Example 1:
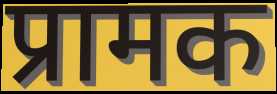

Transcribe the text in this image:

प्रामक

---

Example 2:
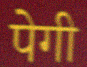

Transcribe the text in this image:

पेगी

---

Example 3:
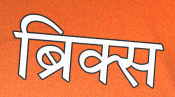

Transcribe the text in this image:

ब्रिक्‍स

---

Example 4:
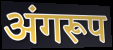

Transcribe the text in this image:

अंगरूप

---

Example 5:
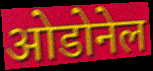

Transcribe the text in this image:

ओडोनेल